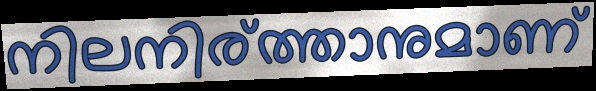
നിലനിര്ത്താനുമാണ്